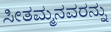
ಸೀತಮ್ಮನವರನ್ನು